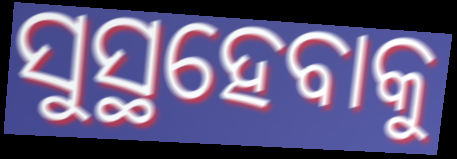
ସୁସ୍ଥହେବାକୁ